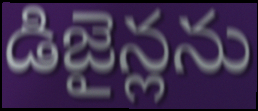
డిజైన్లను